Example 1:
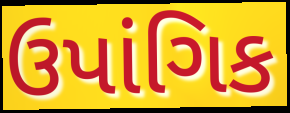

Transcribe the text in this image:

ઉપાંગિક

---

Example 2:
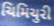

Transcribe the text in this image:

ચિમિચુરી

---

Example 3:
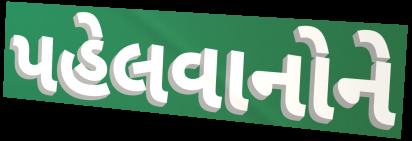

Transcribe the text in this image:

પહેલવાનોને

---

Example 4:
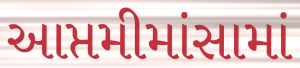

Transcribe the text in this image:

આપ્તમીમાંસામાં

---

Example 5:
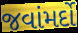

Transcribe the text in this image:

જવાંમર્દો